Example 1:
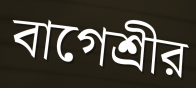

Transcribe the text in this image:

বাগেশ্রীর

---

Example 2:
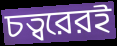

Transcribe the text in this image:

চত্বরেরই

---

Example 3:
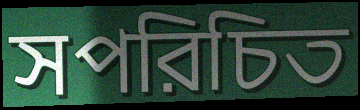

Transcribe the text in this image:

সপরিচিত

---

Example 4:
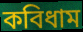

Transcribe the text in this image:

কবিধাম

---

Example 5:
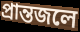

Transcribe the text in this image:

প্রান্তজলে